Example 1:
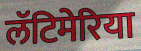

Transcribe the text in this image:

लॅटिमेरिया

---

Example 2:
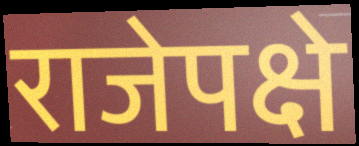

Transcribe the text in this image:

राजेपक्षे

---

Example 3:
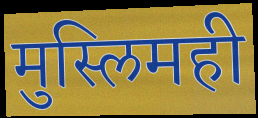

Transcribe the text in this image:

मुस्लिमही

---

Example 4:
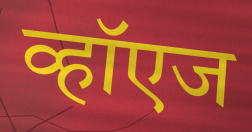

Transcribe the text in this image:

व्हॉएज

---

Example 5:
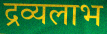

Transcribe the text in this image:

द्रव्यलाभ